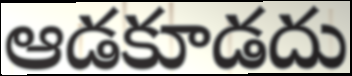
ఆడకూడదు